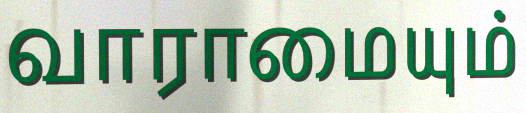
வாராமையும்